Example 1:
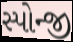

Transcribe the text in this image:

સ્પોન્જી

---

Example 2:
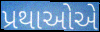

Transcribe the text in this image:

પ્રથાઓએ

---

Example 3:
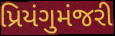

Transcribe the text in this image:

પ્રિયંગુમંજરી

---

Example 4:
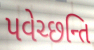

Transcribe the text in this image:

પવેચ્છન્તિ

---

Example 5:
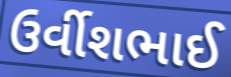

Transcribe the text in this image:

ઉર્વીશભાઈ